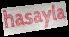
hasayla